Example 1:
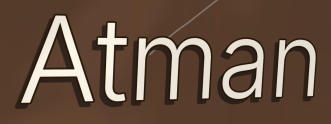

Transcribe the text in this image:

Atman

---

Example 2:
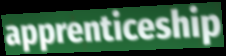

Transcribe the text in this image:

apprenticeship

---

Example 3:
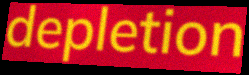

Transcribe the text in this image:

depletion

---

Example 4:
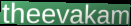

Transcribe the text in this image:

theevakam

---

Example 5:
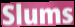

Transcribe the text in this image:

Slums